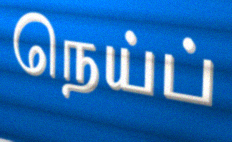
நெய்ப்